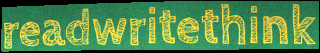
readwritethink